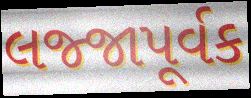
લજ્જાપૂર્વક